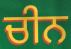
ਚੀਨ